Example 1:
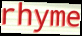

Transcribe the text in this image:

rhyme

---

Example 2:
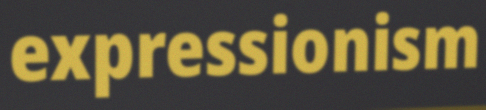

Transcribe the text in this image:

expressionism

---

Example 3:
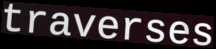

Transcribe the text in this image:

traverses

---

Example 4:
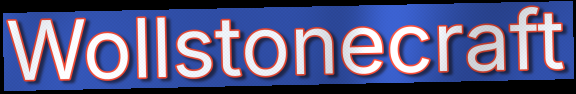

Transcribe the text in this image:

Wollstonecraft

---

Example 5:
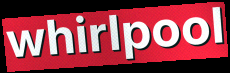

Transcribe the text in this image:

whirlpool